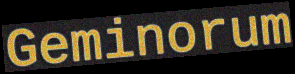
Geminorum